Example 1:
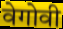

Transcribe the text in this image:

वेगोवी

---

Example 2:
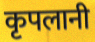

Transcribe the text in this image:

कृपलानी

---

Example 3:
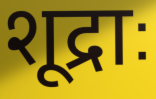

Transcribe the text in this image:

शूद्राः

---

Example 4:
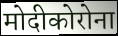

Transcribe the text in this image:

मोदीकोरोना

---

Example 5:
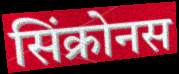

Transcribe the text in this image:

सिंक्रोनस